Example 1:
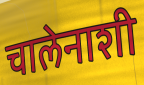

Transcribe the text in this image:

चालेनाशी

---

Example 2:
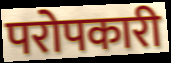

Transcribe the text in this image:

परोपकारी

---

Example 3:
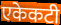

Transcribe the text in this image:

एकेकटी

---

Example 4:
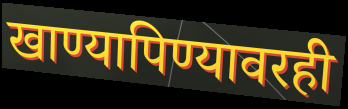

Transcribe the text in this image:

खाण्यापिण्यावरही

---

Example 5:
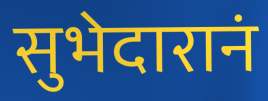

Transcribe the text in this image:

सुभेदारानं